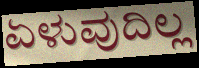
ಏಳುವುದಿಲ್ಲ